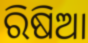
ରିଷିଆ